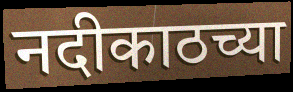
नदीकाठच्या